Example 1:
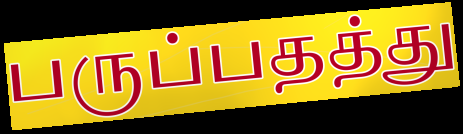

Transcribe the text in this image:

பருப்பதத்து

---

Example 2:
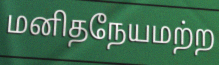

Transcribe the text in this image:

மனிதநேயமற்ற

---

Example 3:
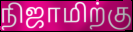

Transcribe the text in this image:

நிஜாமிற்கு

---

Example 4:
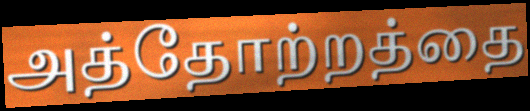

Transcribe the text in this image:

அத்தோற்றத்தை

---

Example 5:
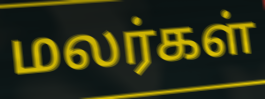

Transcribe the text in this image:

மலர்கள்